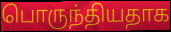
பொருந்தியதாக